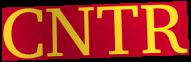
CNTR